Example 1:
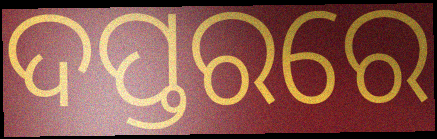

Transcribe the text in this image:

ଦପ୍ତରରେ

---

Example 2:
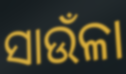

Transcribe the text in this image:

ସାଉଁଳା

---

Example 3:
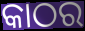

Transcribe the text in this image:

କାଠର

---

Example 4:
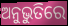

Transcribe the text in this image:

ଅନୁଭୁତିରେ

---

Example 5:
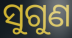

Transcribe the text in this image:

ସୁଗୁଣ